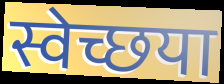
स्वेच्छया